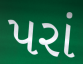
પરાં